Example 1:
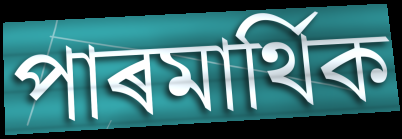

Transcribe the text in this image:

পাৰমাৰ্থিক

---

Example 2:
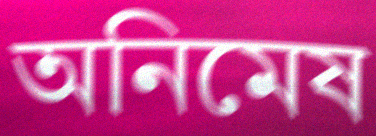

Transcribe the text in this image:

অনিমেষ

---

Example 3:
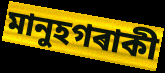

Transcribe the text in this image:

মানুহগৰাকী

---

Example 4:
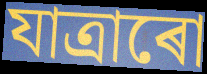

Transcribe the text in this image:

যাত্ৰাৰো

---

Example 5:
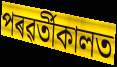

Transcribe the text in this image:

পৰৱৰ্তীকালত